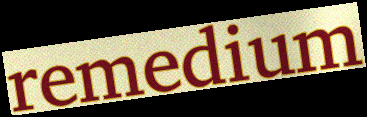
remedium